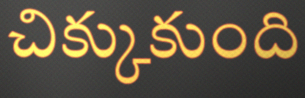
చిక్కుకుంది